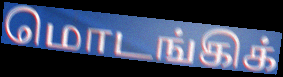
மொடங்கிக்